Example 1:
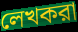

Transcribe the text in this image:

লেখকরা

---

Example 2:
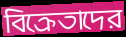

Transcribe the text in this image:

বিক্রেতাদের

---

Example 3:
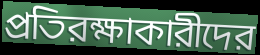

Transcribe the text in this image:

প্রতিরক্ষাকারীদের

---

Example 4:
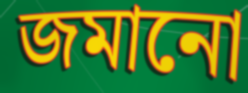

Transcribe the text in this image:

জমানো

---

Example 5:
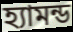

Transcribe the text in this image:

হ্যামন্ড